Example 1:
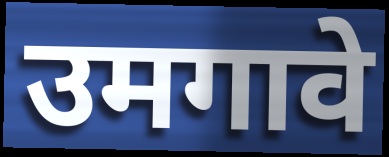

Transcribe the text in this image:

उमगावे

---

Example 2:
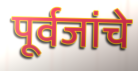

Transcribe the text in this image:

पूर्वजांचे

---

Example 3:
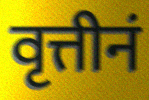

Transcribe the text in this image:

वृत्तीनं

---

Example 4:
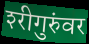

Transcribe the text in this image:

श्रीगुरुंवर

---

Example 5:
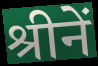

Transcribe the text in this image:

श्रीनें